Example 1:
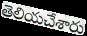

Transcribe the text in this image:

తెలియచేశారు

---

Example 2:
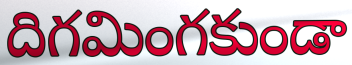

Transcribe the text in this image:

దిగమింగకుండా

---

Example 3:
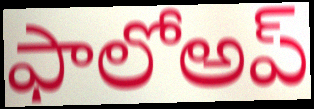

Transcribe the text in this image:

ఫాలోఅప్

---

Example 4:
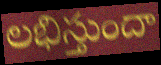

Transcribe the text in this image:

లభిస్తుందా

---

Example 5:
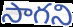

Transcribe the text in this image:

సాగని